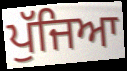
ਪੁੱਜਿਆ